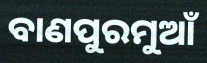
ବାଣପୁରମୁଆଁ